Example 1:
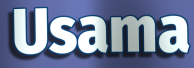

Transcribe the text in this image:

Usama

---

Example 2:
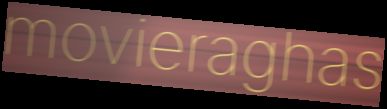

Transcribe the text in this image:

movieraghas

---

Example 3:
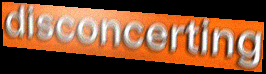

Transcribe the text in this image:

disconcerting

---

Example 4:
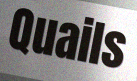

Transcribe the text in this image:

Quails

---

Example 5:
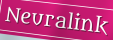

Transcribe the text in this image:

Neuralink